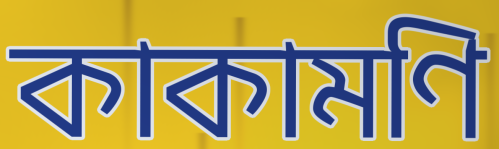
কাকামণি